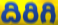
దిరిగి